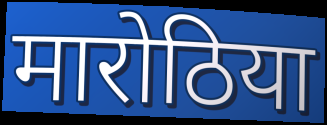
मारोठिया